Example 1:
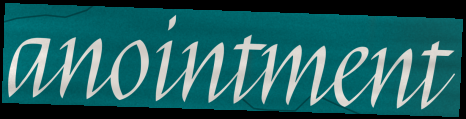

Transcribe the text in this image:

anointment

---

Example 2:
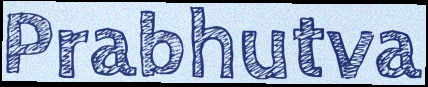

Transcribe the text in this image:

Prabhutva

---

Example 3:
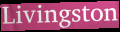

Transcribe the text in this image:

Livingston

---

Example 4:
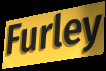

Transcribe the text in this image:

Furley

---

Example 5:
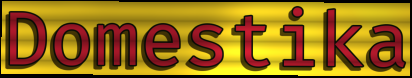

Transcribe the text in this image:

Domestika